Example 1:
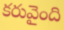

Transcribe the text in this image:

కరువైంది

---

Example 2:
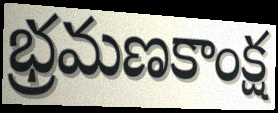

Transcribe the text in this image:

భ్రమణకాంక్ష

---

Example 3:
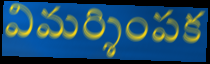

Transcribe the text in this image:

విమర్శింపక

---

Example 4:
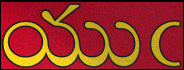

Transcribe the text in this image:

యుఁ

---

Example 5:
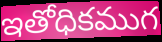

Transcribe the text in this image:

ఇతోధికముగ